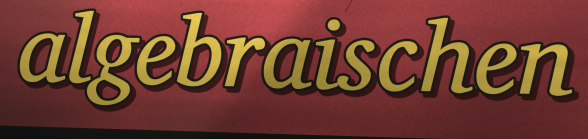
algebraischen